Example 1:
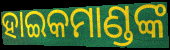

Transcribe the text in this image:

ହାଇକମାଣ୍ଡଙ୍କ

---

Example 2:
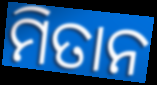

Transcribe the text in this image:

ମିତାନ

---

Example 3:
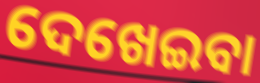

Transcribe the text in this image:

ଦେଖେଇବା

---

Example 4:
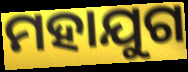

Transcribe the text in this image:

ମହାଯୁଗ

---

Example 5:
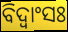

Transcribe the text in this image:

ବିଦ୍ଵାଂସଃ